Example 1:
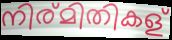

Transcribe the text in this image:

നിര്മിതികള്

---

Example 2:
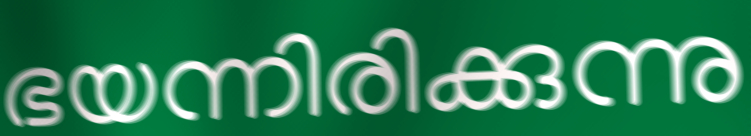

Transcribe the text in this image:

ഭയന്നിരിക്കുന്നു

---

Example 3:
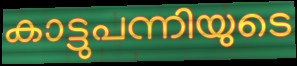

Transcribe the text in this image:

കാട്ടുപന്നിയുടെ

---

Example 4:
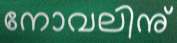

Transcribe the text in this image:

നോവലിനു്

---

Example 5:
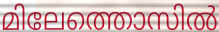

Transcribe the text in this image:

മിലേത്തൊസിൽ